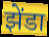
झेंडा